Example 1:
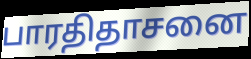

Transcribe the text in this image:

பாரதிதாசனை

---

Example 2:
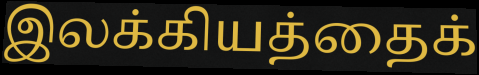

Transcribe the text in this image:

இலக்கியத்தைக்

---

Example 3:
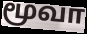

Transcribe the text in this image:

மூவா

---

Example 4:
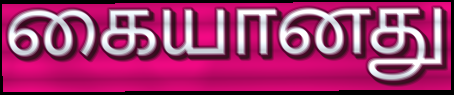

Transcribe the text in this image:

கையானது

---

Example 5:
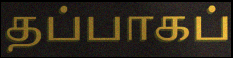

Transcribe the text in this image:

தப்பாகப்